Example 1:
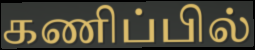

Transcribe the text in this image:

கணிப்பில்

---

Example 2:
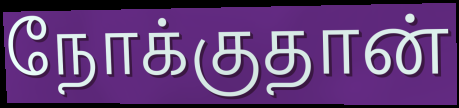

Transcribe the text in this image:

நோக்குதான்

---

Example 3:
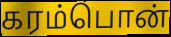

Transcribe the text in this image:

கரம்பொன்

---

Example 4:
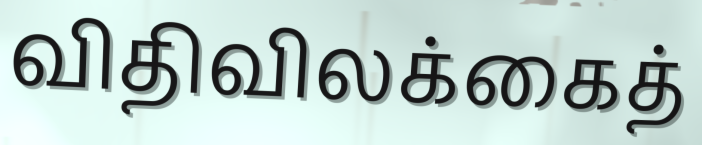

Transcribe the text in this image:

விதிவிலக்கைத்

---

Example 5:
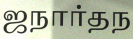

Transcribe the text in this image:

ஜநார்தந